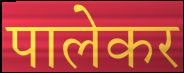
पालेकर